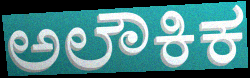
ಅಲೌಕಿಕ